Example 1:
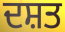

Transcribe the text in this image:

ਦਸ਼ਤ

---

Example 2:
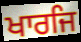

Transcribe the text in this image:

ਖਾਰਜਿ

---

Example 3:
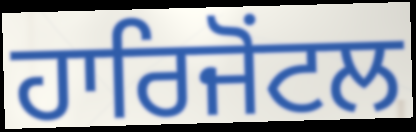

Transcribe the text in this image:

ਹਾਰਿਜੋਂਟਲ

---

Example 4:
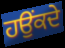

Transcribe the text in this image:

ਹਉਂਕਦੇ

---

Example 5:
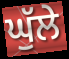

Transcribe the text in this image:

ਘੁੱਲੇ